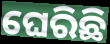
ଘେରିଛି